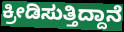
ಕ್ರೀಡಿಸುತ್ತಿದ್ದಾನೆ